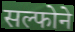
सल्फोने